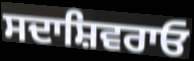
ਸਦਾਸ਼ਿਵਰਾਓ